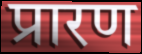
प्रारण